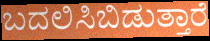
ಬದಲಿಸಿಬಿಡುತ್ತಾರೆ